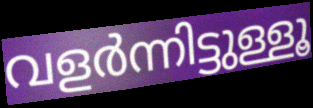
വളർന്നിട്ടുള്ളൂ